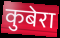
कुबेरा